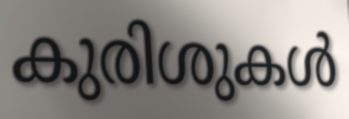
കുരിശുകൾ